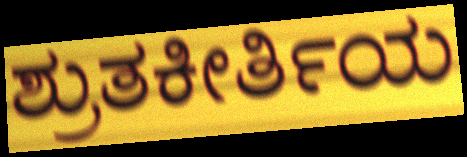
ಶ್ರುತಕೀರ್ತಿಯ